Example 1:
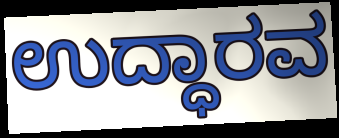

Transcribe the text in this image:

ಉದ್ಧಾರವ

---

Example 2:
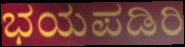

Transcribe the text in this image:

ಭಯಪಡಿರಿ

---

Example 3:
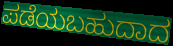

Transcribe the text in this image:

ಪಡೆಯಬಹುದಾದ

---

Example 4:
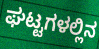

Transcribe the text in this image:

ಘಟ್ಟಗಳಲ್ಲಿನ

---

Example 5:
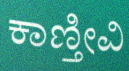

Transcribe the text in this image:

ಕಾಣ್ತೀವಿ